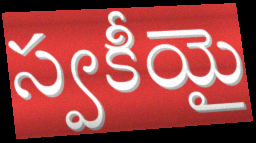
స్వకీయై